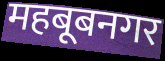
महबूबनगर